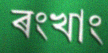
ৰংখাং